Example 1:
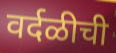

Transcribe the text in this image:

वर्दळीची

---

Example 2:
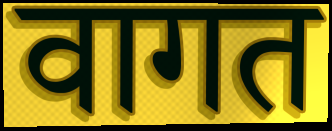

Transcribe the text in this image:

वागत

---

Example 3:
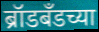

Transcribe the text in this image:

ब्रॉडबँडच्या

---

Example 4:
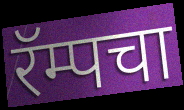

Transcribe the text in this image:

रॅम्पचा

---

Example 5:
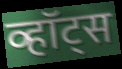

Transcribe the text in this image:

व्हॉट्स